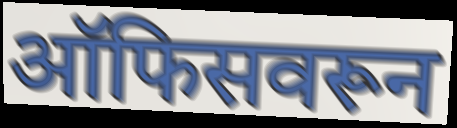
ऑफिसवरून